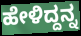
ಹೇಳಿದ್ದನ್ನ